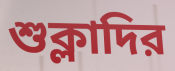
শুক্লাদির